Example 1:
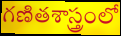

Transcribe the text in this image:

గణితశాస్త్రంలో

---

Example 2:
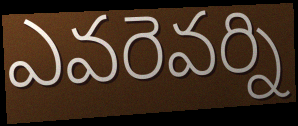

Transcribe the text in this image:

ఎవరెవర్ని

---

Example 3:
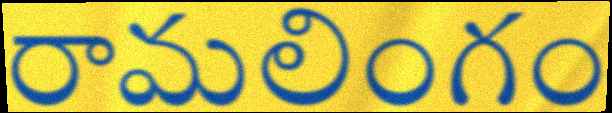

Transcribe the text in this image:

రామలింగం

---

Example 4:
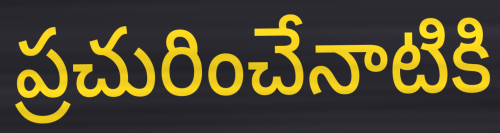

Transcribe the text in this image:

ప్రచురించేనాటికి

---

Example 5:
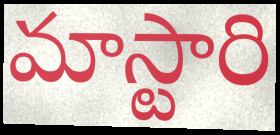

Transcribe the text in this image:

మాస్టారి